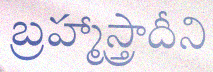
బ్రహ్మాస్త్రాదీని